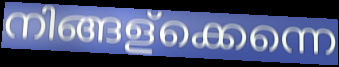
നിങ്ങള്ക്കെന്നെ